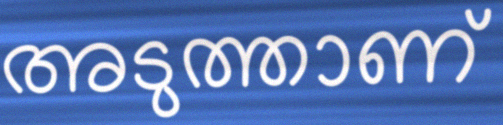
അടുത്താണ്